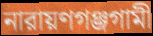
নারায়ণগঞ্জগামী